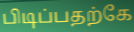
பிடிப்பதற்கே